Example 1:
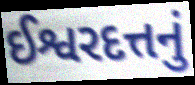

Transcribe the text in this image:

ઈશ્વરદત્તનું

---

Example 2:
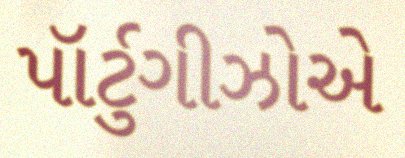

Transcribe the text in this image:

પૉર્ટુગીઝોએ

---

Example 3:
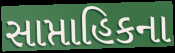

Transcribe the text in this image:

સાપ્તાહિકના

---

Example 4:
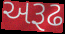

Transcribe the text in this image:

અરૂઢ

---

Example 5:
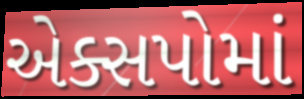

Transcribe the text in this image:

એક્સપોમાં